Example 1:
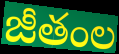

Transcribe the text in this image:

జీతంల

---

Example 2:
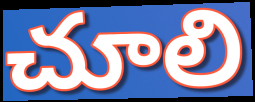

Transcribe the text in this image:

చూలి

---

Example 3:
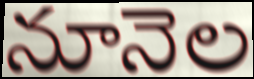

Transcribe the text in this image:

నూనెల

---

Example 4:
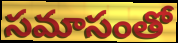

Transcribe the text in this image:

సమాసంతో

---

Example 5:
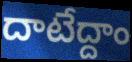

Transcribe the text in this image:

దాటేద్దాం